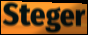
Steger